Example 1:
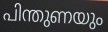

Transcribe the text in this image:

പിന്തുണയും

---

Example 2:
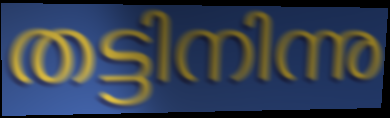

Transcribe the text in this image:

തട്ടിനിന്നു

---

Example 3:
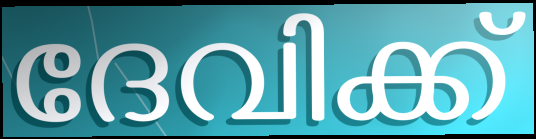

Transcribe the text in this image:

ദേവിക്ക്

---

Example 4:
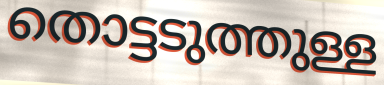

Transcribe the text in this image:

തൊട്ടടുത്തുള്ള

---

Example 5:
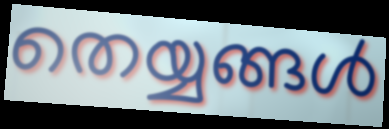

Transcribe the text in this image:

തെയ്യങ്ങൾ